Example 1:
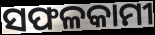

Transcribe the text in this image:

ସଫଳକାମୀ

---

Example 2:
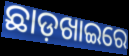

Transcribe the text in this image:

ଛାଡ଼ଖାଇରେ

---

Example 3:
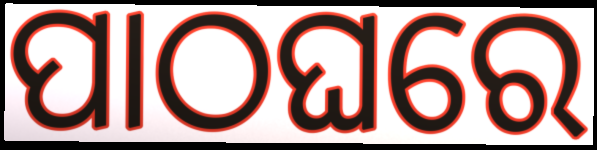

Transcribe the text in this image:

ପାଠଘରେ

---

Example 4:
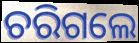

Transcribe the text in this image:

ଚରିଗଲେ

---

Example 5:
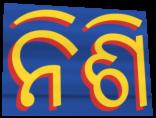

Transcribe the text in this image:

ନିଶି